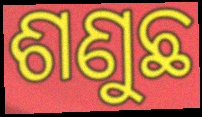
ଶଣୁଛ